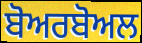
ਬੋਅਰਬੋਅਲ